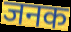
जनक